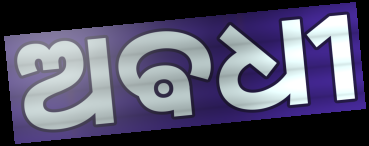
ଅଵଧୀ